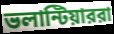
ভলান্টিয়াররা